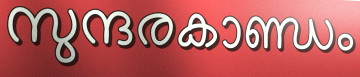
സുന്ദരകാണ്ഡം